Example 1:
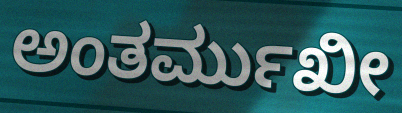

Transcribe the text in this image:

ಅಂತರ್ಮುಖೀ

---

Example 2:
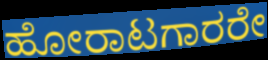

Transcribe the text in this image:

ಹೋರಾಟಗಾರರೇ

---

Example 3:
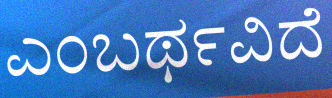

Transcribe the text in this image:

ಎಂಬರ್ಥವಿದೆ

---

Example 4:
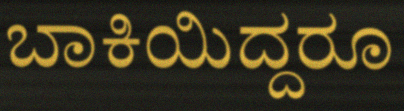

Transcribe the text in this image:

ಬಾಕಿಯಿದ್ದರೂ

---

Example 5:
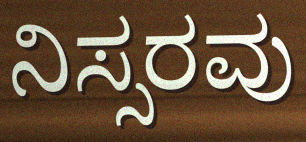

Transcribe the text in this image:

ನಿಸ್ಸರವು